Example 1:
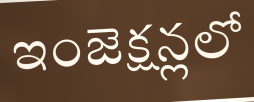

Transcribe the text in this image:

ఇంజెక్షన్లలో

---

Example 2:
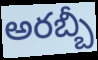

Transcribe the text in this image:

అరబ్బీ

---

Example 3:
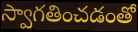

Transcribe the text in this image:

స్వాగతించడంతో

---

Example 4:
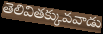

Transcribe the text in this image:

తెలివితక్కువవాడు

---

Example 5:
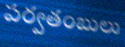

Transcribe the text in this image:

పర్వతంబులు